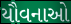
યૌવનાઓ